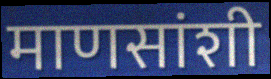
माणसांशी